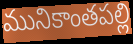
మునికాంతపల్లి